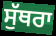
ਸੁੱਥਰਾ